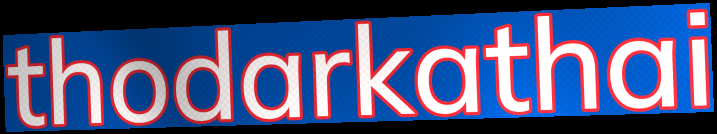
thodarkathai